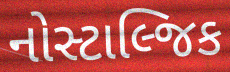
નોસ્ટાલ્જિક